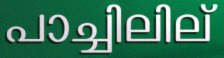
പാച്ചിലില്